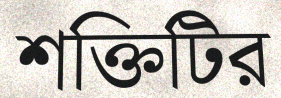
শক্তিটির